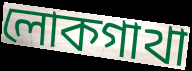
লোকগাথা